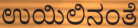
ಉಯಿಲಿನಂತೆ